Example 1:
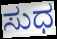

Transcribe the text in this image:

ಸುಧ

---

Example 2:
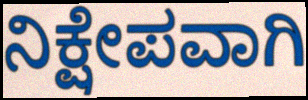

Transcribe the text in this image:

ನಿಕ್ಷೇಪವಾಗಿ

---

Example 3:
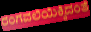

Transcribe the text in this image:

ರಂಗವಲಿಯಿಕ್ಕಿದಂತೆ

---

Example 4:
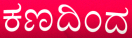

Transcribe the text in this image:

ಕಣದಿಂದ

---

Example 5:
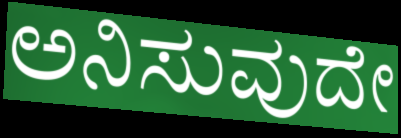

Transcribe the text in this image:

ಅನಿಸುವುದೇ